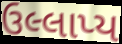
ઉલ્લાપ્ય